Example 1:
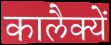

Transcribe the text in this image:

कालैक्यें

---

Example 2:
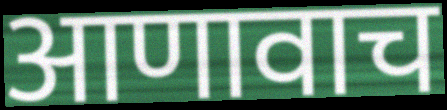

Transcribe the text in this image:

आणावाच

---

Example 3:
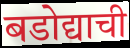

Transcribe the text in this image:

बडोद्याची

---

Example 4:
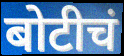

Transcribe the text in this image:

बोटीचं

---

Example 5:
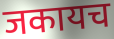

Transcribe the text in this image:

जकायच